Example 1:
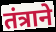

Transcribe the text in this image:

तंत्राने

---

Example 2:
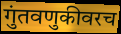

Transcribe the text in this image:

गुंतवणुकीवरच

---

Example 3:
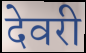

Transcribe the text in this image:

देवरी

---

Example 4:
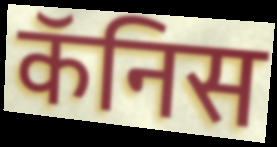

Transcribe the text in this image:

कॅनिस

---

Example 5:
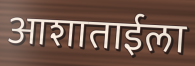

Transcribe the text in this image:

आशाताईला